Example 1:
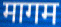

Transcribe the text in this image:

मागम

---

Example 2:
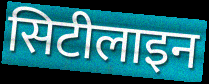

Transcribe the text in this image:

सिटीलाइन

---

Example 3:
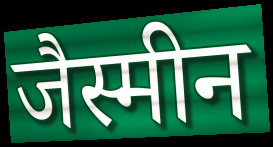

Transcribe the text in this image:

जैस्‍मीन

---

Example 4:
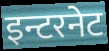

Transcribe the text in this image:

इन्‍टरनेट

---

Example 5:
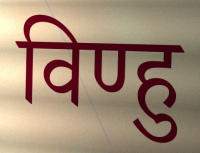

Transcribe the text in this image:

विण्हु